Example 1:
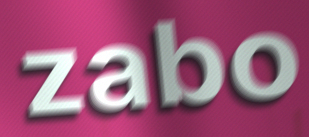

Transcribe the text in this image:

zabo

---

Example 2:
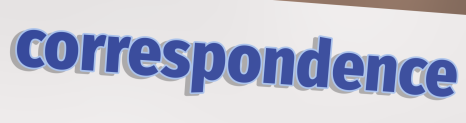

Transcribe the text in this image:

correspondence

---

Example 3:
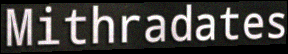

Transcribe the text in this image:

Mithradates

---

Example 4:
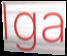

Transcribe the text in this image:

Iga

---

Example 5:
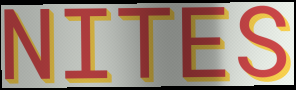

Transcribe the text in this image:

NITES